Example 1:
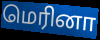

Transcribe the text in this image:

மெரினா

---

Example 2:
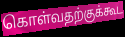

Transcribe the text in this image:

கொள்வதற்குக்கூட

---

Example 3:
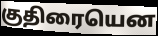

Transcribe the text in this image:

குதிரையென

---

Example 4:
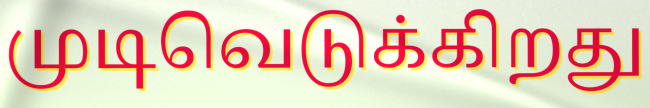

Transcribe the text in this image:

முடிவெடுக்கிறது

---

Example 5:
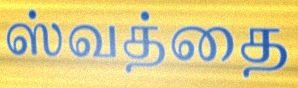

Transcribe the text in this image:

ஸ்வத்தை